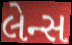
લેન્સ